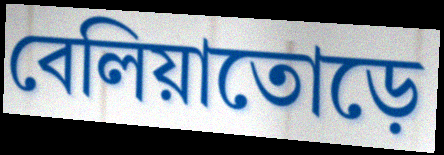
বেলিয়াতোড়ে